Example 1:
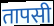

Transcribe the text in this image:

तापसी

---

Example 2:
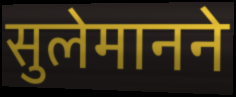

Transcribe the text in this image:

सुलेमानने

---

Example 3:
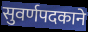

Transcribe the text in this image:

सुवर्णपदकाने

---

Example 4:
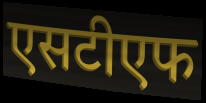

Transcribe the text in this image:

एसटीएफ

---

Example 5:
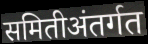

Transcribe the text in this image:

समितीअंतर्गत